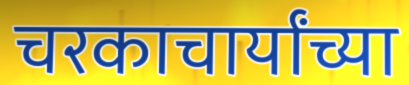
चरकाचार्यांच्या